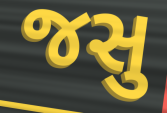
જસુ